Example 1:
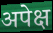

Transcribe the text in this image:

अपेक्ष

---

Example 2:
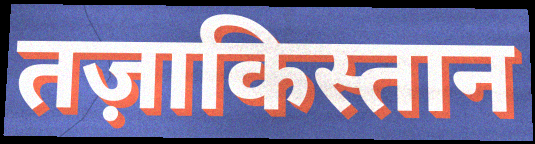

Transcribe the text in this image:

तज़ाकिस्तान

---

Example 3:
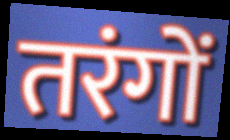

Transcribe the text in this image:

तरंगों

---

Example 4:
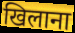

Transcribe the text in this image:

खिलाना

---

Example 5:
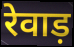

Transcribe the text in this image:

रेवाड़